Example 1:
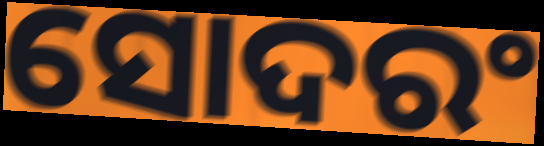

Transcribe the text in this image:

ସୋଦରଂ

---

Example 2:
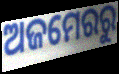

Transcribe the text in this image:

ଅଜମେରରୁ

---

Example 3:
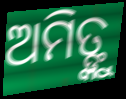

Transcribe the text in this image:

ଅମିତ୍ଙ୍କୁ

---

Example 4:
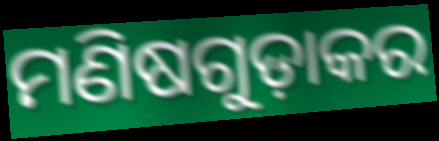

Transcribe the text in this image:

ମଣିଷଗୁଡ଼ାକର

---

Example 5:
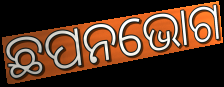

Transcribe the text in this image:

ଛପନଭୋଗ